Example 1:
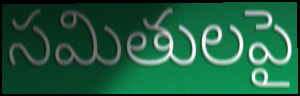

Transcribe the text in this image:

సమితులపై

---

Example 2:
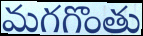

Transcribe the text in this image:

మగగొంతు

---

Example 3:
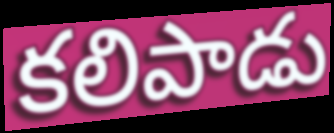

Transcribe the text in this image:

కలిపాడు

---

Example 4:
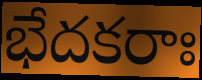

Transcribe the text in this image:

భేదకరాః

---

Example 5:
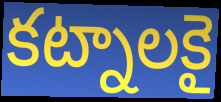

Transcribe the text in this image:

కట్నాలకై